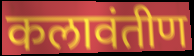
कलावंतीण